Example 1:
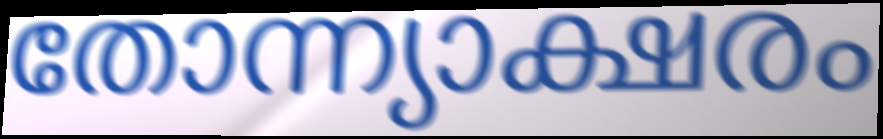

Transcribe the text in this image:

തോന്ന്യാക്ഷരം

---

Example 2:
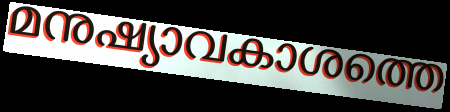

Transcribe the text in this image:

മനുഷ്യാവകാശത്തെ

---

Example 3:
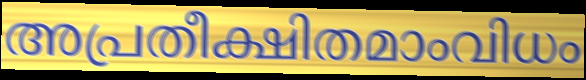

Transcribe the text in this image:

അപ്രതീക്ഷിതമാംവിധം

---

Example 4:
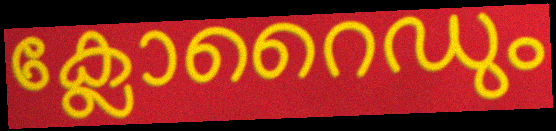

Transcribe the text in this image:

ക്ലോറൈഡും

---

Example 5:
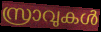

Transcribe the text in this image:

സ്രാവുകൾ